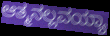
ಆತ್ಮನಲ್ಲವಯ್ಯಾ